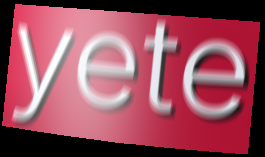
yete